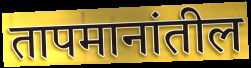
तापमानांतील